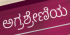
ಅಗ್ರಶ್ರೇಣಿಯ